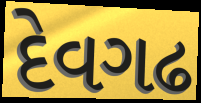
દેવગઢ